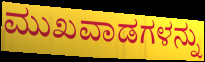
ಮುಖವಾಡಗಳನ್ನು